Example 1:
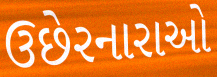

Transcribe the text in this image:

ઉછેરનારાઓ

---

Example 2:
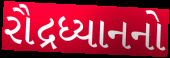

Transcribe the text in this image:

રૌદ્રધ્યાનનો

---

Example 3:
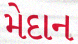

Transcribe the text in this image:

મેદાન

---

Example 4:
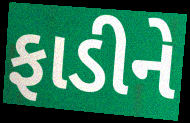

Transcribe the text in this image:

ફાડીને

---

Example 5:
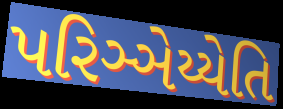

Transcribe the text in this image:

પરિઞ્ઞેય્યેતિ